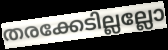
തരക്കേടില്ലല്ലോ